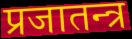
प्रजातन्त्र